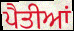
ਪੈਤੀਆਂ